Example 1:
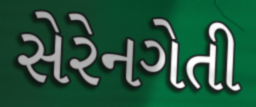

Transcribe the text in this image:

સેરેનગેતી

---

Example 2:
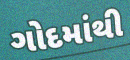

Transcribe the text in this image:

ગોદમાંથી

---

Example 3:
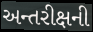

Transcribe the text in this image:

અન્તરીક્ષની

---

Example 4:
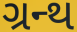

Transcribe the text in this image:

ગ્રન્થ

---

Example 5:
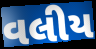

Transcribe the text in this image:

વલીય